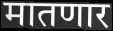
मातणार